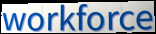
workforce